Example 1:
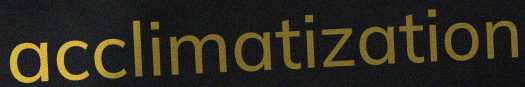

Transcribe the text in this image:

acclimatization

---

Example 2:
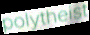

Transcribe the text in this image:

polytheist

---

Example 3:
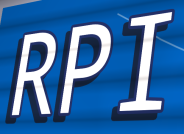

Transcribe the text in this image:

RPI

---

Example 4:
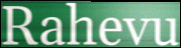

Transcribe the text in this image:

Rahevu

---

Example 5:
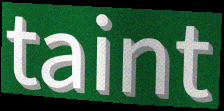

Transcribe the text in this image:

taint